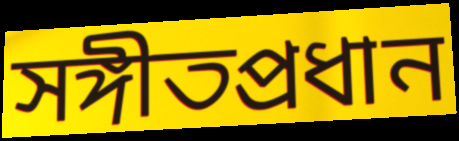
সঙ্গীতপ্রধান